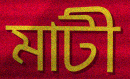
মাটী